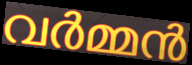
വർമ്മൻ